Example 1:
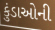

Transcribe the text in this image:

કુંડાઓની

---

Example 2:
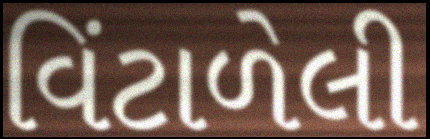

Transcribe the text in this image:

વિંટાળેલી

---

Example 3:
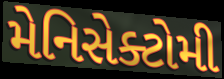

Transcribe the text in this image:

મેનિસેક્ટોમી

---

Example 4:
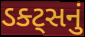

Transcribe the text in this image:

ડક્ટ્સનું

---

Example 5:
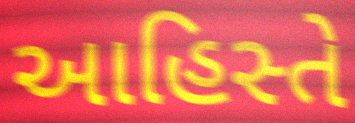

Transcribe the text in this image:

આહિસ્તે